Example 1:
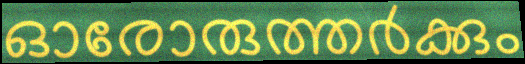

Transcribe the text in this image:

ഓരോരുത്തർക്കും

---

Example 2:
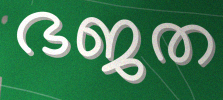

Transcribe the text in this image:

ഭജത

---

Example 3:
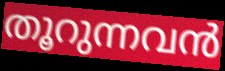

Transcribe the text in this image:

തൂറുന്നവൻ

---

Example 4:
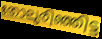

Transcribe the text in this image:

തോലുരിഞ്ഞിട്ട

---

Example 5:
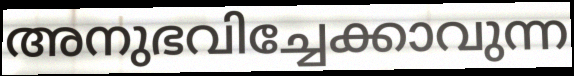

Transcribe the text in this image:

അനുഭവിച്ചേക്കാവുന്ന